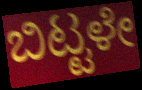
ಬಿಟ್ಟಳೇ